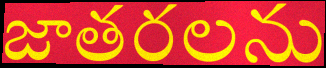
జాతరలను